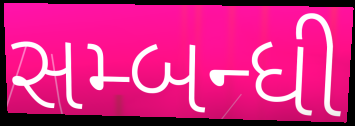
સમ્બન્ધી